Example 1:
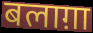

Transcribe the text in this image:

बलाग़ा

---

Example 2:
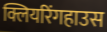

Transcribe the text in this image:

क्लियरिंगहाउस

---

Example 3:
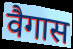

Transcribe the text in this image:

वैगास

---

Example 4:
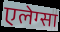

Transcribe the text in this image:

एलेग्सा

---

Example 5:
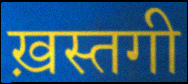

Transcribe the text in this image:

ख़स्तगी